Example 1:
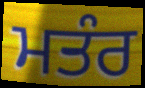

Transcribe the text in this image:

ਮਤੰਰ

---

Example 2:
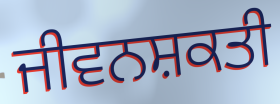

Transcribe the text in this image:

ਜੀਵਨਸ਼ਕਤੀ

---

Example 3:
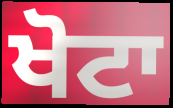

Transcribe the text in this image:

ਖੋਟਾ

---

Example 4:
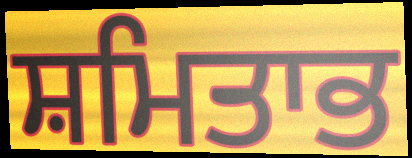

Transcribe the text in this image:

ਸ਼ਮਿਤਾਭ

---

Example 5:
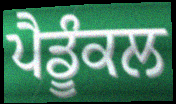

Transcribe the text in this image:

ਪੈਡੂੰਕਲ